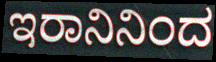
ಇರಾನಿನಿಂದ